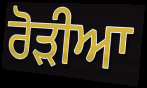
ਰੋੜੀਆ